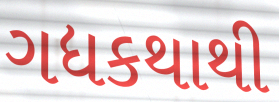
ગદ્યકથાથી